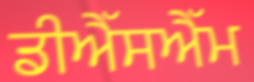
ਡੀਐੱਸਐੱਮ